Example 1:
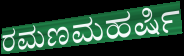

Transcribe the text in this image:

ರಮಣಮಹರ್ಷಿ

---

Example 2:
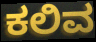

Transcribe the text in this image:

ಕಲಿವ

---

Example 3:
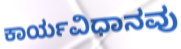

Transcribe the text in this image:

ಕಾರ್ಯವಿಧಾನವು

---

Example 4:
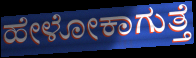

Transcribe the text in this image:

ಹೇಳೋಕಾಗುತ್ತೆ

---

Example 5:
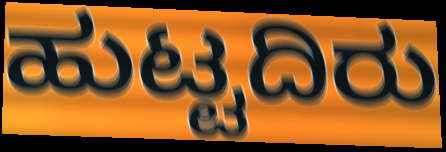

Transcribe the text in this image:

ಹುಟ್ಟದಿರು